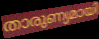
താരുണ്യമായി